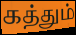
கத்தும்